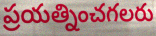
ప్రయత్నించగలరు